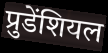
प्रुडेंशियल